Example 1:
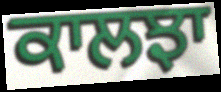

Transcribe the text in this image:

ਕਾਲਝਾ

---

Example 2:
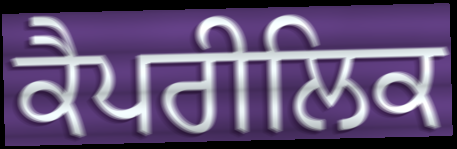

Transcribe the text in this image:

ਕੈਪਰੀਲਿਕ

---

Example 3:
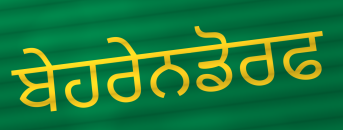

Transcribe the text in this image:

ਬੇਹਰੇਨਡੋਰਫ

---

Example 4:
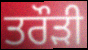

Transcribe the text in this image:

ਤਰੌੜੀ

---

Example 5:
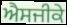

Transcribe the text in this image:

ਐਸਜੀਕੇ